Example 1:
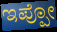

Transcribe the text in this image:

ಇಪ್ಪೋ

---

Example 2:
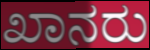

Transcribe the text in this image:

ಖಾನರು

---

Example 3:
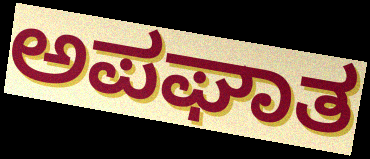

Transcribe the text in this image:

ಅಪಘಾತ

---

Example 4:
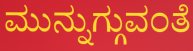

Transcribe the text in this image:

ಮುನ್ನುಗ್ಗುವಂತೆ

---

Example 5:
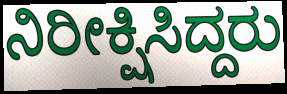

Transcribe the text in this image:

ನಿರೀಕ್ಷಿಸಿದ್ದರು